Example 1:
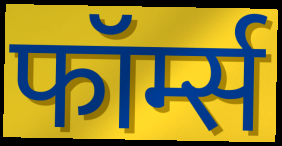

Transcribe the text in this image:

फॉर्म्स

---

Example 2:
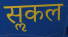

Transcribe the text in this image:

सॢकल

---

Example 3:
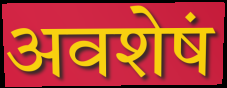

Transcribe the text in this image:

अवशेषं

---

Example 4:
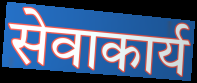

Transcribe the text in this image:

सेवाकार्य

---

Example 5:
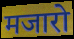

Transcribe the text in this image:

मजारो